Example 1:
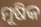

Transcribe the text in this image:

ମୂଷିକ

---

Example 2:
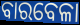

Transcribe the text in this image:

ବାରବେଳା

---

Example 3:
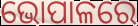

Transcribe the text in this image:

ଭୋପାଳରେ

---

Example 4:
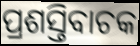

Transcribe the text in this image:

ପ୍ରଶସ୍ତିବାଚକ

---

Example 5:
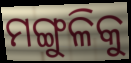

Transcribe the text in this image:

ମଙ୍ଗୁଳିକୁ